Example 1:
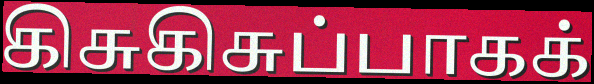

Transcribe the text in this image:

கிசுகிசுப்பாகக்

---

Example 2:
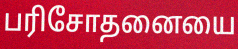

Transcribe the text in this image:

பரிசோதனையை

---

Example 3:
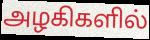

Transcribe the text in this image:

அழகிகளில்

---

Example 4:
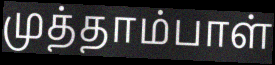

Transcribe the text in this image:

முத்தாம்பாள்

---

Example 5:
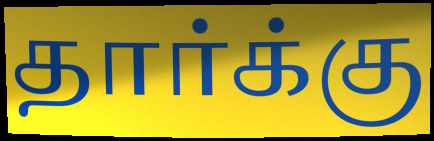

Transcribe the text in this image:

தார்க்கு